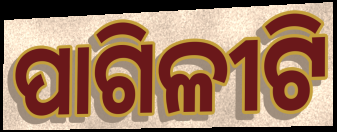
ପାଗିଳୀଟି